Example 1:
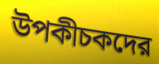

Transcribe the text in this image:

উপকীচকদের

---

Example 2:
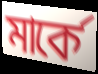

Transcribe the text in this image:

মার্কে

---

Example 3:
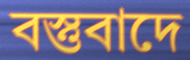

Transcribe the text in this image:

বস্তুবাদে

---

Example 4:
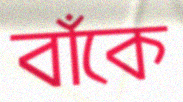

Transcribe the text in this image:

বাঁকে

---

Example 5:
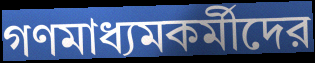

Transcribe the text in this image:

গণমাধ্যমকর্মীদের